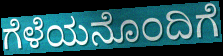
ಗೆಳೆಯನೊಂದಿಗೆ